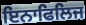
ਇਨਾਫਿਲਿਜ